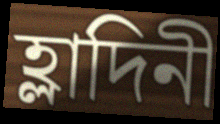
হ্লাদিনী